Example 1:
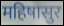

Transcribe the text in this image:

महिषासुर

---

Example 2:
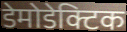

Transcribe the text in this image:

डेमोडेक्टिक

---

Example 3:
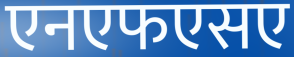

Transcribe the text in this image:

एनएफएसए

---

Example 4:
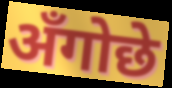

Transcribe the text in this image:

अँगोछे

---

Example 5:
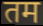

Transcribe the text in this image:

तम